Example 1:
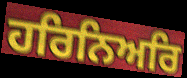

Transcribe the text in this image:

ਹਰਿਨਿਅਰਿ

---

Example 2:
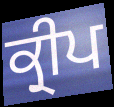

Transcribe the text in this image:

ਕ੍ਰੀਪ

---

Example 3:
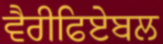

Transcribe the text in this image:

ਵੈਰੀਫਿਏਬਲ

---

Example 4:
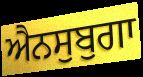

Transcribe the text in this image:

ਐਨਸੁਬੁਗਾ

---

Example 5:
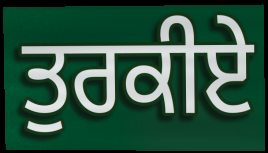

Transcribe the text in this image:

ਤੁਰਕੀਏ